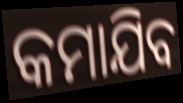
କମାଯିବ